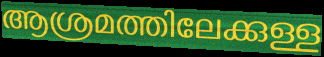
ആശ്രമത്തിലേക്കുള്ള